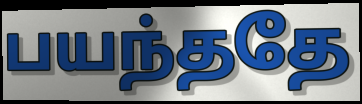
பயந்ததே